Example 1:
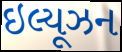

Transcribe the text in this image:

ઇલ્યૂઝન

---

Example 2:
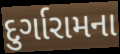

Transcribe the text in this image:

દુર્ગારામના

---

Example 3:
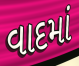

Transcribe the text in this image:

વાદમાં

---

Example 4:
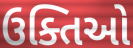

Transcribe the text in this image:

ઉક્તિઓ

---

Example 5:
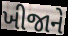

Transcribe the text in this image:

ખીજાને